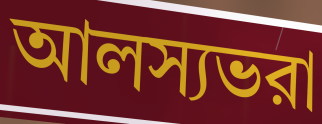
আলস্যভরা